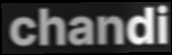
chandi